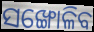
ସଙ୍ଖୋଳିବ